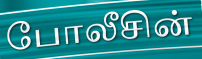
போலீசின்